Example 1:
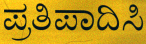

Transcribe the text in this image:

ಪ್ರತಿಪಾದಿಸಿ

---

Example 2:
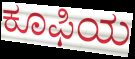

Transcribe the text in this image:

ಕೂಫಿಯ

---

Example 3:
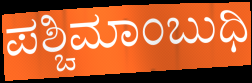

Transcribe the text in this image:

ಪಶ್ಚಿಮಾಂಬುಧಿ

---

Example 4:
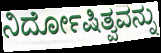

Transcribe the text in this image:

ನಿರ್ದೋಷಿತ್ವವನ್ನು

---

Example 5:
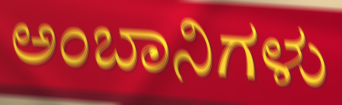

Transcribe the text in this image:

ಅಂಬಾನಿಗಳು